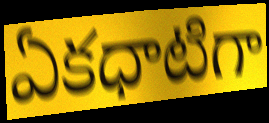
ఏకధాటిగా